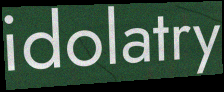
idolatry